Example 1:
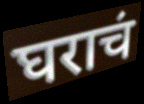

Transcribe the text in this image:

घराचं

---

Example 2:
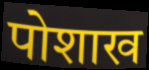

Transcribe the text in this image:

पोशाख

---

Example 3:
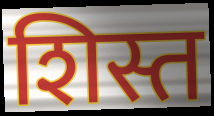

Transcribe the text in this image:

शिस्त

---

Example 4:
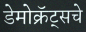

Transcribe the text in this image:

डेमोक्रॅट्सचे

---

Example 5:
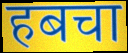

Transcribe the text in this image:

हबचा